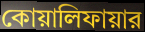
কোয়ালিফায়ার